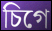
চিগে